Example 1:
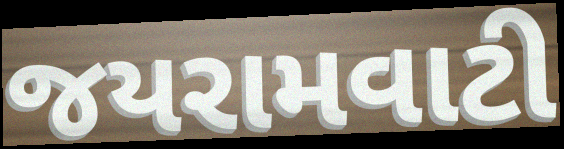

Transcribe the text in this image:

જયરામવાટી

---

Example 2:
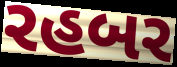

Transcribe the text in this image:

રહબર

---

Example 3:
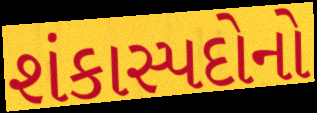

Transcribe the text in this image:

શંકાસ્પદોનો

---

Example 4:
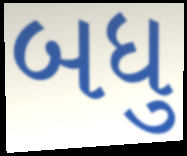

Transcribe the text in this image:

બધુ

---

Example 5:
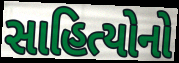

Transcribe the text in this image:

સાહિત્યોનો